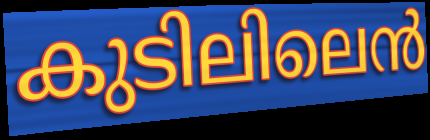
കുടിലിലെൻ